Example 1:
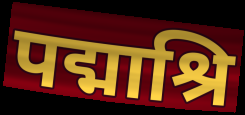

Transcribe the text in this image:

पद्माश्रि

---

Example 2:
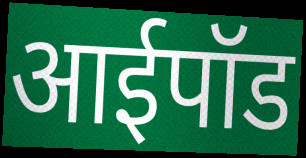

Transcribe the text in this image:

आईपॉड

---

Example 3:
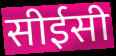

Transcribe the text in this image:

सीईसी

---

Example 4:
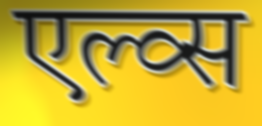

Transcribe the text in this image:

एल्व्स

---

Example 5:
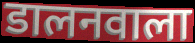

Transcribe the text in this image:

डालनवाला